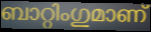
ബാറ്റിംഗുമാണ്